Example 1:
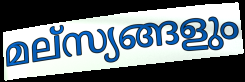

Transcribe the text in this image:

മല്സ്യങ്ങളും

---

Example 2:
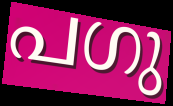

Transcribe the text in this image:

പഗു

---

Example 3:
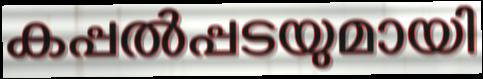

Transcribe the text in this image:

കപ്പൽപ്പടയുമായി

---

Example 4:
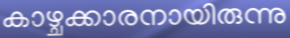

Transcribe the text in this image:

കാഴ്ചക്കാരനായിരുന്നു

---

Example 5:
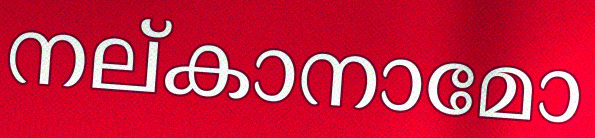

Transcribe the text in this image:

നല്കാനാമോ